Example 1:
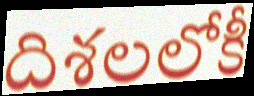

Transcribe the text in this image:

దిశలలోకీ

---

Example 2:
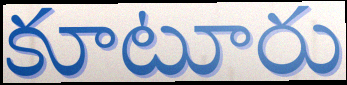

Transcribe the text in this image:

కూటూరు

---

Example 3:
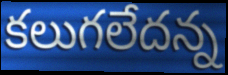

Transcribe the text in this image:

కలుగలేదన్న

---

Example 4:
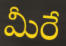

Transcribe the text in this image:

మీరే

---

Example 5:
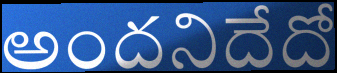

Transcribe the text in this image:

అందనిదేదో